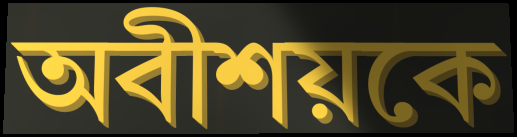
অবীশয়কে